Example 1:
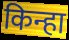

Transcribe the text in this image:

किन्हा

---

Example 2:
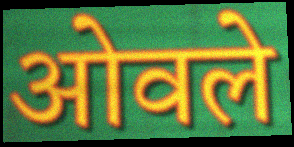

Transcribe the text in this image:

ओवले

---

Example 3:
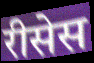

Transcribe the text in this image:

रीसेस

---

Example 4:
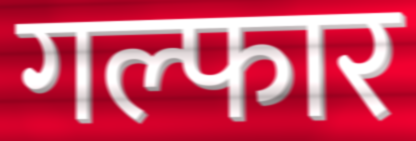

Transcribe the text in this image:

गल्फार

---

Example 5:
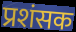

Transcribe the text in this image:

प्रशंसक